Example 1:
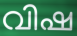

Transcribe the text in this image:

വിഷ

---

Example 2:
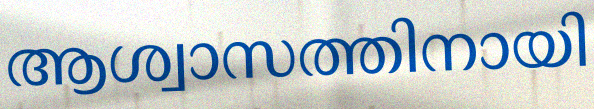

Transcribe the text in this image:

ആശ്വാസത്തിനായി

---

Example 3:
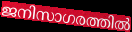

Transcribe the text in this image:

ജനിസാഗരത്തിൽ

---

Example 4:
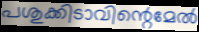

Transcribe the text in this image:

പശുക്കിടാവിന്റെമേൽ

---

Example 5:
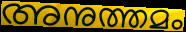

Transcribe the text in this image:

അനുത്തമം